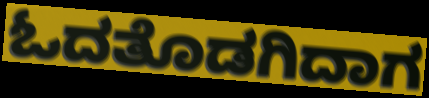
ಓದತೊಡಗಿದಾಗ